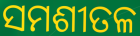
ସମଶୀତଳ